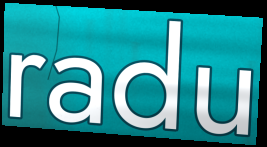
radu